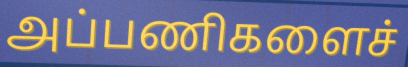
அப்பணிகளைச்